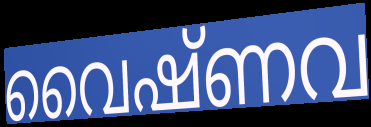
വൈഷ്ണവ